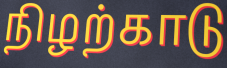
நிழற்காடு